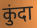
कुंदा